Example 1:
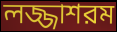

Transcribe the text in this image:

লজ্জাশরম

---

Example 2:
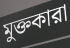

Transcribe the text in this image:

মুক্তকারা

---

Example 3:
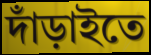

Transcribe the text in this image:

দাঁড়াইতে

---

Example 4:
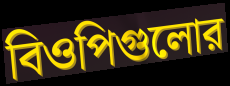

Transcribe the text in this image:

বিওপিগুলোর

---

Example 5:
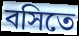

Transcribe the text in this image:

বসিতে